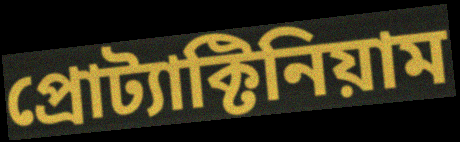
প্রোট্যাক্টিনিয়াম